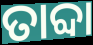
ତାବ୍ଦା